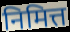
निमित्त